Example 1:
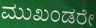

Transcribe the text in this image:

ಮುಖಂಡರೇ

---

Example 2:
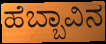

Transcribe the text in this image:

ಹೆಬ್ಬಾವಿನ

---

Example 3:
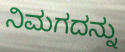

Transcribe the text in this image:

ನಿಮಗದನ್ನು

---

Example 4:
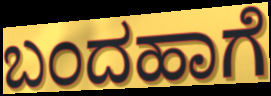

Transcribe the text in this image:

ಬಂದಹಾಗೆ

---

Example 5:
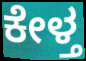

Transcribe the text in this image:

ಕೇಳ್ತ